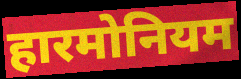
हारमोनियम